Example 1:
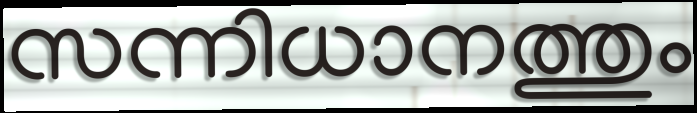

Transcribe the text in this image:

സന്നിധാനത്തും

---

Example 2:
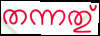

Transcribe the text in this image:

തന്നതു്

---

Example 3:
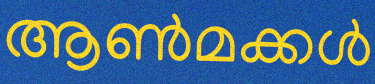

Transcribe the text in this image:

ആൺമക്കൾ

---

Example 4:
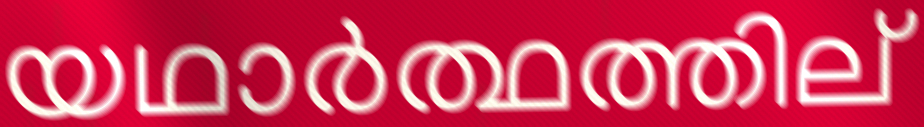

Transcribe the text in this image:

യഥാർത്ഥത്തില്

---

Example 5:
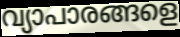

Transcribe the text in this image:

വ്യാപാരങ്ങളെ